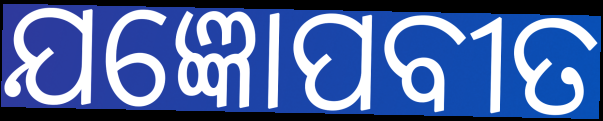
ଯଜ୍ଞୋପବୀତ